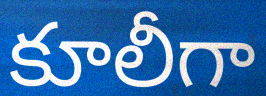
కూలీగా